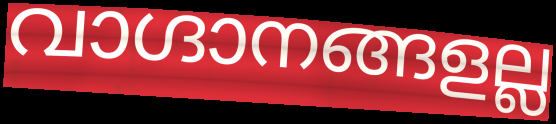
വാഗ്ദാനങ്ങളല്ല